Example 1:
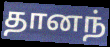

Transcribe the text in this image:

தானந்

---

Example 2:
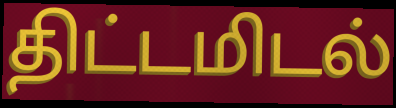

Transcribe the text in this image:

திட்டமிடல்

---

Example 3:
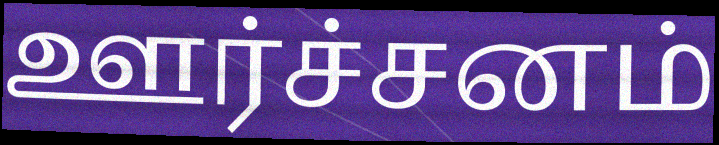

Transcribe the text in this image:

ஊர்ச்சனம்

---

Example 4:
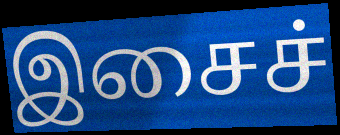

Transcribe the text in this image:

இசைச்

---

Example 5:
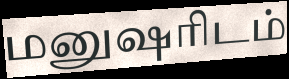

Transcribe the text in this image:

மனுஷரிடம்